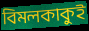
বিমলকাকুই